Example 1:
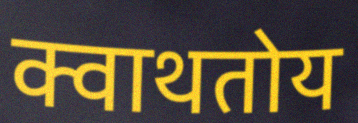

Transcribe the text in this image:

क्वाथतोय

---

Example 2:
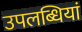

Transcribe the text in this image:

उपलब्धियां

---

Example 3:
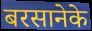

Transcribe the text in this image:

बरसानेके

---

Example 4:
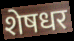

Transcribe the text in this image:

शेषधर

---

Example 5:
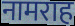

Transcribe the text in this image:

नामराह